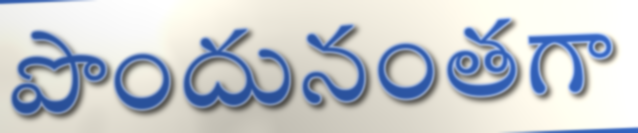
పొందునంతగా